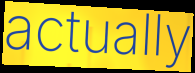
actually